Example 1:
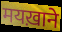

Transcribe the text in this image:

मयख़ाने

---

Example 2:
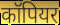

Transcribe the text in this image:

कॉपियर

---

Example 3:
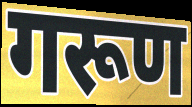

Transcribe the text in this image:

गरूण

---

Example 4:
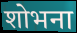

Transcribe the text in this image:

शोभना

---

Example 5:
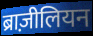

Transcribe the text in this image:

ब्राज़ीलियन